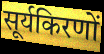
सूर्यकिरणों